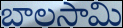
బాలసామి